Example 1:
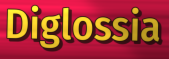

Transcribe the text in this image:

Diglossia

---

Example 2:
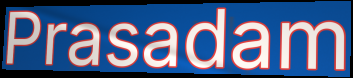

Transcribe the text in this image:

Prasadam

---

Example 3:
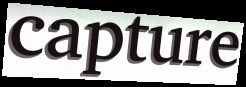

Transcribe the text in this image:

capture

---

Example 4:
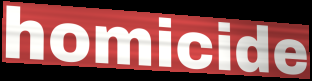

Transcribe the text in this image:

homicide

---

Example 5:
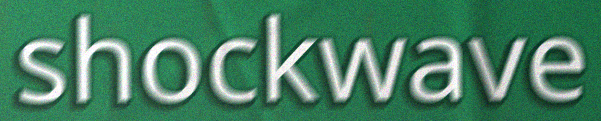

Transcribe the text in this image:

shockwave